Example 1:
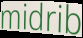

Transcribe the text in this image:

midrib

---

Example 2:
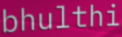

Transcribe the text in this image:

bhulthi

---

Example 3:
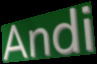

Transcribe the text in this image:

Andi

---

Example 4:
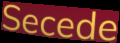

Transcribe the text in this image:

Secede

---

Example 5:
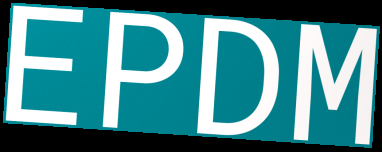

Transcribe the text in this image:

EPDM